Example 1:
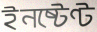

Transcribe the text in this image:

ইনষ্টেণ্ট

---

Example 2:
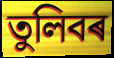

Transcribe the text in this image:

তুলিবৰ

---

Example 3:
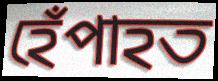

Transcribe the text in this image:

হেঁপাহত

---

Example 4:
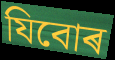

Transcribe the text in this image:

যিবোৰ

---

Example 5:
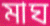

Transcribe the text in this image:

মাঘ